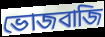
ভোজবাজি